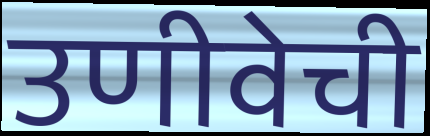
उणीवेची